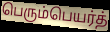
பெரும்பெயர்த்